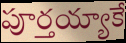
పూర్తయ్యాకే